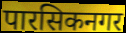
पारसिकनगर